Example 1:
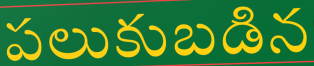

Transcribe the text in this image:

పలుకుబడిన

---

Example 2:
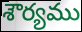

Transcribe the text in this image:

శౌర్యము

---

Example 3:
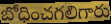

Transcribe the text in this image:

బోధించగలిగారు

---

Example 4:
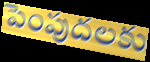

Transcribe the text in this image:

పెంపుదలకు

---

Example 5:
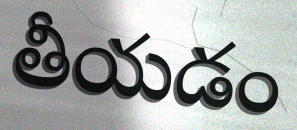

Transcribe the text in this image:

తీయడం